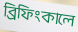
ব্রিফিংকালে